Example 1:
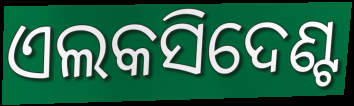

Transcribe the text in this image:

ଏଲକସିଦେଣ୍ଟ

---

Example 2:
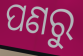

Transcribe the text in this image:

ପଣରୁ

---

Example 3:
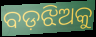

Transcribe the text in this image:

ବଡ଼ଝିଅକୁ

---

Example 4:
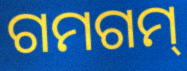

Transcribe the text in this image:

ଗମଗମ୍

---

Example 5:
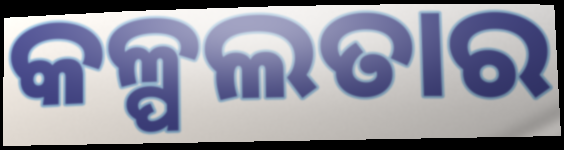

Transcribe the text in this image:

କଳ୍ପଲତାର